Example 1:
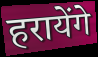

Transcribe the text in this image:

हरायेंगे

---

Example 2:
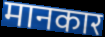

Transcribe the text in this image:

मानकार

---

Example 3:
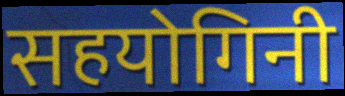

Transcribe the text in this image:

सहयोगिनी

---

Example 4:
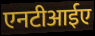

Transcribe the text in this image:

एनटीआईए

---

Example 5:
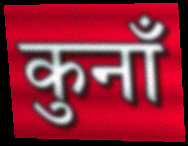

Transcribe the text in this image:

कुनाँ